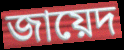
জায়েদ